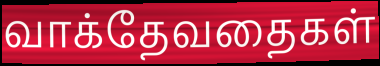
வாக்தேவதைகள்